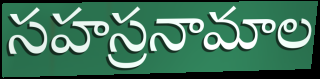
సహస్రనామాల